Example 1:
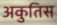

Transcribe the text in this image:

अकुतिस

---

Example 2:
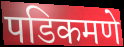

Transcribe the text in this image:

पडिकमणे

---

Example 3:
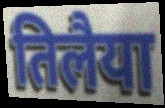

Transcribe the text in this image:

तिलैया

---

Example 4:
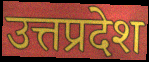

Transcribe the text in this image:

उत्तप्रदेश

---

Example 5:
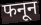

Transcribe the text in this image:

फनून